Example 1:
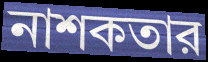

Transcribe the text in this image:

নাশকতার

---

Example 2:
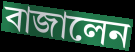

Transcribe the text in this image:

বাজালেন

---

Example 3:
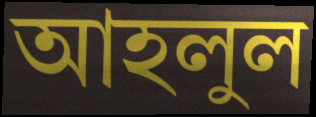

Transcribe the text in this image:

আহলুল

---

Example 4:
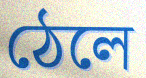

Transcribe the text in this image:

ঠেলে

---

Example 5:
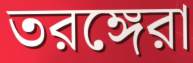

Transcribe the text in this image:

তরঙ্গেরা